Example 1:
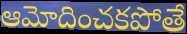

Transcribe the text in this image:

ఆమోదించకపోతే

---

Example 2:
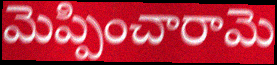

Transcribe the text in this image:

మెప్పించారామె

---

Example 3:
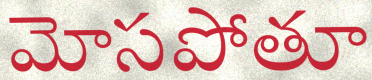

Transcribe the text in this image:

మోసపోతూ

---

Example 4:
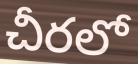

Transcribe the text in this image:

చీరలో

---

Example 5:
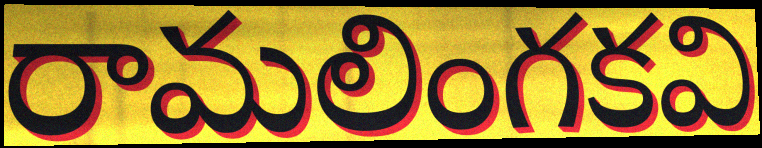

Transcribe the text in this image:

రామలింగకవి